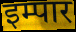
इम्पार